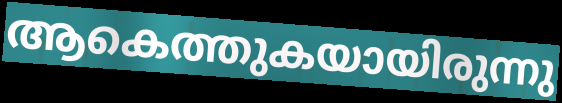
ആകെത്തുകയായിരുന്നു